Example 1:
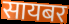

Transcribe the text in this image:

सायबर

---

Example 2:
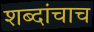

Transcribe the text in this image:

शब्दांचाच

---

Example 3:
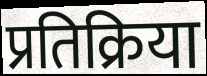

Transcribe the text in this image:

प्रतिक्रिया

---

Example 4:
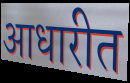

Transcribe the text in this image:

आधारीत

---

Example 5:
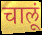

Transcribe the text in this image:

चालूं